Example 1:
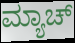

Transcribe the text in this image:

ಮ್ಯಾಚ್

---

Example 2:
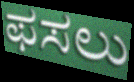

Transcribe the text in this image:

ಫಸಲು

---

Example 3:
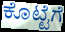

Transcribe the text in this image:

ಕೊಟ್ಟೆಗೆ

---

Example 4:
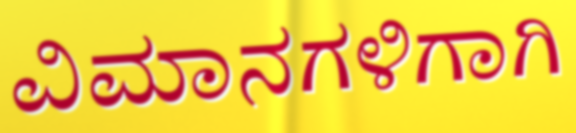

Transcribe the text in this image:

ವಿಮಾನಗಳಿಗಾಗಿ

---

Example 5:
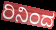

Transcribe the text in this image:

ರಿನಿಂದ